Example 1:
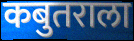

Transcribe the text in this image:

कबुतराला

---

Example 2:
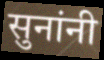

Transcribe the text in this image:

सुनांनी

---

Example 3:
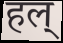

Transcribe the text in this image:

हल्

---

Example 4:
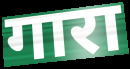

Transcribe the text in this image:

गारा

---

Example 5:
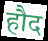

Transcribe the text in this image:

हौद